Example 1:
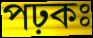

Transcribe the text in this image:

পঢ়কঃ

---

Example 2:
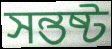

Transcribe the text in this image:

সন্তষ্ট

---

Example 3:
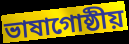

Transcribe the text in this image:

ভাষাগোষ্ঠীয়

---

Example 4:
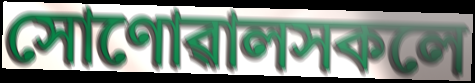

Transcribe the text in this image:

সোণোৱালসকলে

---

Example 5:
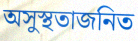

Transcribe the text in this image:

অসুস্থতাজনিত